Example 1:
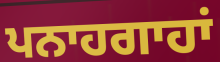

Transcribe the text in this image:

ਪਨਾਹਗਾਹਾਂ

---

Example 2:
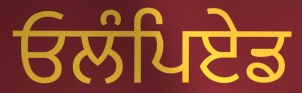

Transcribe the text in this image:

ਓਲੰਪਿਏਡ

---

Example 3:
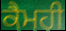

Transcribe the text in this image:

ਕੈਮਹੀ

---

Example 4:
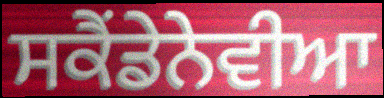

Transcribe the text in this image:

ਸਕੈਂਡੇਨੇਵੀਆ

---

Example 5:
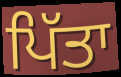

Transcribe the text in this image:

ਪਿੱਤਾ